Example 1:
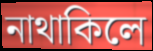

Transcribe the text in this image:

নাথাকিলে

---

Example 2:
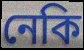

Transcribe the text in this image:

নেকি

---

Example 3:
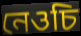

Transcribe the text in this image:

নেওচি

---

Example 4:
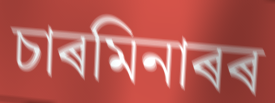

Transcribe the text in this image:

চাৰমিনাৰৰ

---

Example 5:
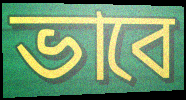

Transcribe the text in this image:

ভাবে